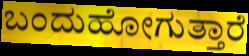
ಬಂದುಹೋಗುತ್ತಾರೆ